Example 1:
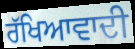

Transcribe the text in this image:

ਰੱਖਿਆਵਾਦੀ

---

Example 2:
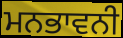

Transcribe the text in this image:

ਮਨਭਾਵਨੀ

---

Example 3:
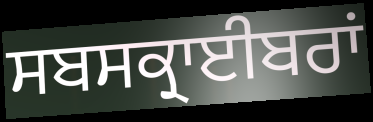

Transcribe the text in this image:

ਸਬਸਕ੍ਰਾਈਬਰਾਂ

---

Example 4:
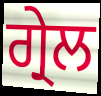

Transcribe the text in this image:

ਗ੍ਰੇਲ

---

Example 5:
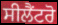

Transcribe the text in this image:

ਸੀਲੈਂਟਰੋ